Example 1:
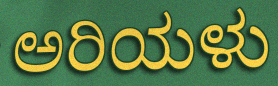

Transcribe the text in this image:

ಅರಿಯಳು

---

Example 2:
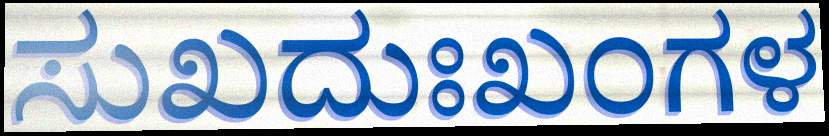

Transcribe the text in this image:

ಸುಖದುಃಖಂಗಳ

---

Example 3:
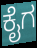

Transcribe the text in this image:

ಕೈಗ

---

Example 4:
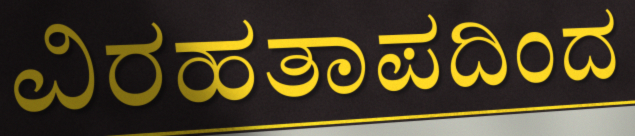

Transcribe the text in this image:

ವಿರಹತಾಪದಿಂದ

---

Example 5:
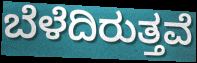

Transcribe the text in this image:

ಬೆಳೆದಿರುತ್ತವೆ